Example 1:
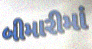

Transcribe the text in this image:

બીમારીમાં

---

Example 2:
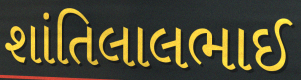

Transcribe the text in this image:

શાંતિલાલભાઈ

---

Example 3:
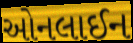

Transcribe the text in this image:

ઓનલાઈન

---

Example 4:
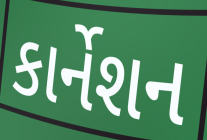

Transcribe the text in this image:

કાર્નેશન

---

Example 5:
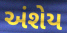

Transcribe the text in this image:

અંશેય